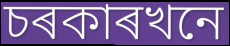
চৰকাৰখনে